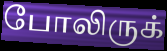
போலிருக்